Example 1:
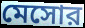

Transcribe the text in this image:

মেসোর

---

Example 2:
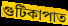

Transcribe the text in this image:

গুটিকাপাত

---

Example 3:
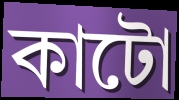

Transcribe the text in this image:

কাটো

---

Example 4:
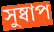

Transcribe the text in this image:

সুষ্বাপ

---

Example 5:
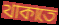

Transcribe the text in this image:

থাকাতে